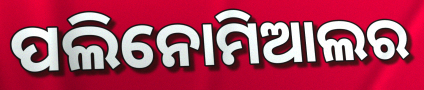
ପଲିନୋମିଆଲର